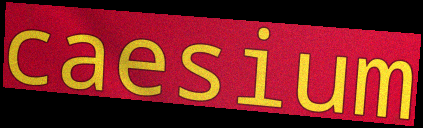
caesium